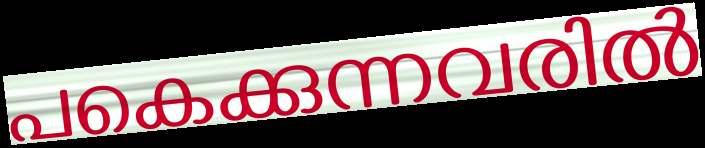
പകെക്കുന്നവരിൽ